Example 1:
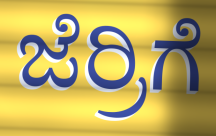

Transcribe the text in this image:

ಜೆರ್ರಿಗೆ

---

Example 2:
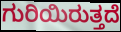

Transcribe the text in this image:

ಗುರಿಯಿರುತ್ತದೆ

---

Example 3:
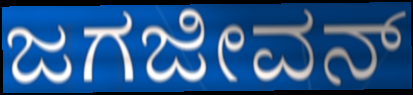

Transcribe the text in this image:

ಜಗಜೀವನ್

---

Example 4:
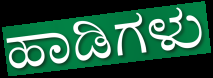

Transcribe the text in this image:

ಹಾಡಿಗಳು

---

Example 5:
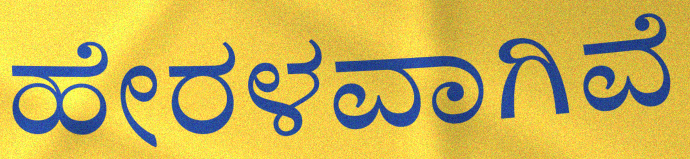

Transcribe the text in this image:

ಹೇರಳವಾಗಿವೆ